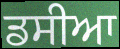
ਡਸੀਆ